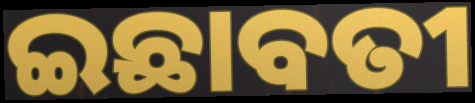
ଇଛାବତୀ